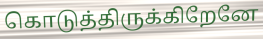
கொடுத்திருக்கிறேனே